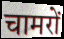
चामरों